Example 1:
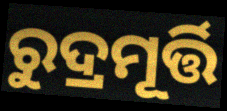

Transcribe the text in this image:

ରୁଦ୍ରମୂର୍ତ୍ତି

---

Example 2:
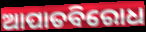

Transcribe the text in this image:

ଆପାତବିରୋଧ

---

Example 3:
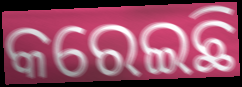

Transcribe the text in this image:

କରେଇଛି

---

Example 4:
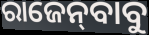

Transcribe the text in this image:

ରାଜେନ୍‌ବାବୁ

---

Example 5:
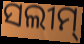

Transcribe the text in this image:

ସଲୀମ୍